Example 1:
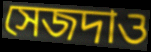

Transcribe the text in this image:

সেজদাও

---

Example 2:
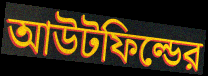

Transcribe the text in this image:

আউটফিল্ডের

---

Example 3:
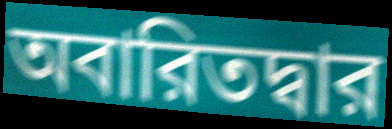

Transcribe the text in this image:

অবারিতদ্বার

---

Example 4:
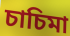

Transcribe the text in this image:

চাচিমা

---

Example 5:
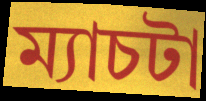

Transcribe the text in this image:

ম্যাচটা